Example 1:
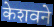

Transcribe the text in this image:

केशवने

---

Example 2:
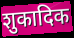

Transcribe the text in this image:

शुकादिक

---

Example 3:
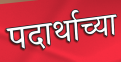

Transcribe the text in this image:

पदार्थाच्या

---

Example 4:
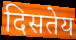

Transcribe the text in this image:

दिसतेय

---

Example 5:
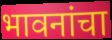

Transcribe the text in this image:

भावनांचा